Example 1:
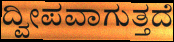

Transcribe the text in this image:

ದ್ವೀಪವಾಗುತ್ತದೆ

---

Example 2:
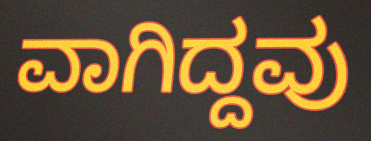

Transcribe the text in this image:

ವಾಗಿದ್ದವು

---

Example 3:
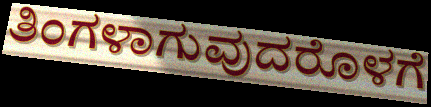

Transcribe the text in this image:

ತಿಂಗಳಾಗುವುದರೊಳಗೆ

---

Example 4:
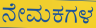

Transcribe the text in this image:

ನೇಮಕಗಳ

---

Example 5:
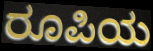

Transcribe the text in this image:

ರೂಪಿಯ